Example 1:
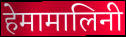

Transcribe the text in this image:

हेमामालिनी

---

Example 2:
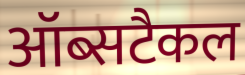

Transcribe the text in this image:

ऑब्सटैकल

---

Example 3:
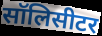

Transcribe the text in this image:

सॉलिसीटर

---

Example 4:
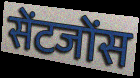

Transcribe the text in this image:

सेंटजोंस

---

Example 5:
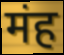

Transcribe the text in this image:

मंह